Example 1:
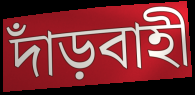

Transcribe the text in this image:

দাঁড়বাহী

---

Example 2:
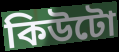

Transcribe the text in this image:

কিউটো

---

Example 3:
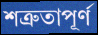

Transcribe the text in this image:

শত্রুতাপূর্ণ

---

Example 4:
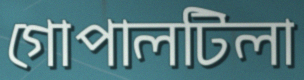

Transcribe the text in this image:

গোপালটিলা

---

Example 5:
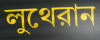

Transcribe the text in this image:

লুথেরান